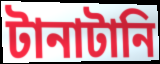
টানাটানি